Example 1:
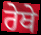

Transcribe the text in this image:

ਰੇਥੇ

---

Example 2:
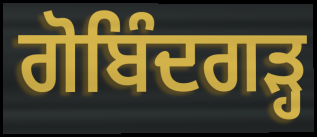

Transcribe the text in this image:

ਗੋਬਿੰਦਗੜ੍ਹ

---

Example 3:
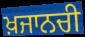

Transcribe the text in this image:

ਖ਼ਜਾਨਚੀ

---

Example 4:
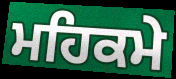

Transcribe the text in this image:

ਮਹਿਕਮੇ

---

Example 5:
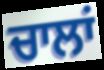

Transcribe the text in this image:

ਚਾਲਾਂ